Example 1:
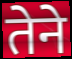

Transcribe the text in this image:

तेने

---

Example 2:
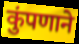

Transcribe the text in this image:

कुंपणाने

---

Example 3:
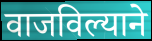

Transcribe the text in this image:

वाजविल्याने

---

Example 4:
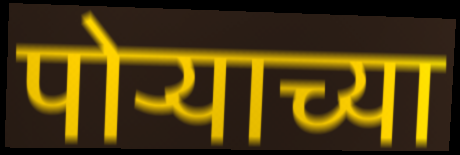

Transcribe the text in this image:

पोऱ्याच्या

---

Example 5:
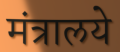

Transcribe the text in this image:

मंत्रालये